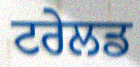
ਟਰੇਲਡ